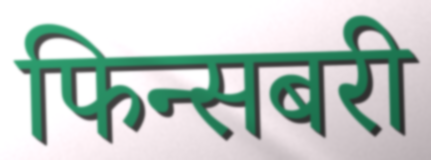
फिन्सबरी